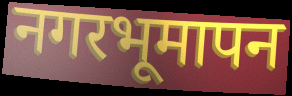
नगरभूमापन